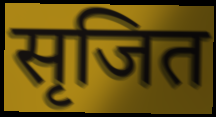
सृजित